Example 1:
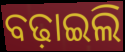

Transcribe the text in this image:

ବଢ଼ାଇଲି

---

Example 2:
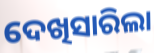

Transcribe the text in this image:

ଦେଖିସାରିଲା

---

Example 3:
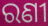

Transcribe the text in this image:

ରଣୀ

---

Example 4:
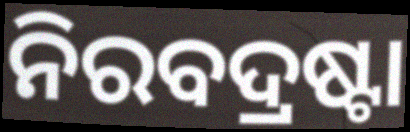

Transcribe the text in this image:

ନିରବଦ୍ରଷ୍ଟା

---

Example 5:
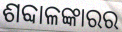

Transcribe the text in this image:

ଶବ୍ଦାଳଙ୍କାରର